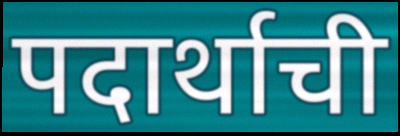
पदार्थाची